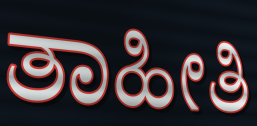
ತಾಹೀತಿ